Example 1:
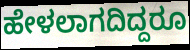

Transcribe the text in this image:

ಹೇಳಲಾಗದಿದ್ದರೂ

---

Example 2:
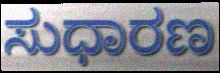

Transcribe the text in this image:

ಸುಧಾರಣ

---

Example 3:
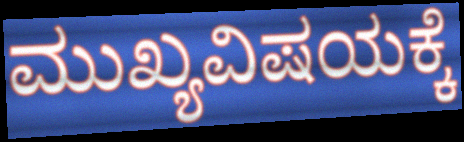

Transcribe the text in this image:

ಮುಖ್ಯವಿಷಯಕ್ಕೆ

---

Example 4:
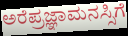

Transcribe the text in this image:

ಅರೆಪ್ರಜ್ಞಾಮನಸ್ಸಿಗೆ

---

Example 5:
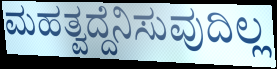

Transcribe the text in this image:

ಮಹತ್ವದ್ದೆನಿಸುವುದಿಲ್ಲ